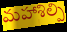
మహాశిల్పి